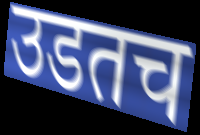
उडतच